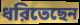
ধরিতেছেন